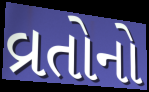
વ્રતોનો